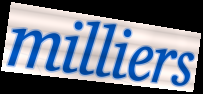
milliers